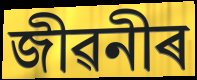
জীৱনীৰ